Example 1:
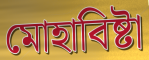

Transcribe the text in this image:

মোহাবিষ্টা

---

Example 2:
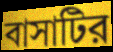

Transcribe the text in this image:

বাসাটির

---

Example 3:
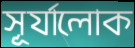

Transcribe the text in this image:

সূর্যালোক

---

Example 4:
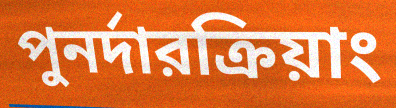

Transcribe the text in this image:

পুনর্দারক্রিয়াং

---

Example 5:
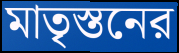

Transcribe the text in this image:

মাতৃস্তনের